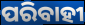
ପରିବାହୀ